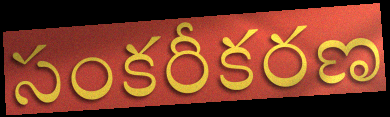
సంకరీకరణ